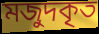
মজুদকৃত